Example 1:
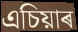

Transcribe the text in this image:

এচিয়াৰ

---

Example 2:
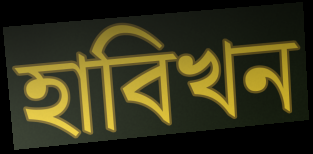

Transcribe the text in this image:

হাবিখন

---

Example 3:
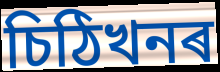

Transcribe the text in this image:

চিঠিখনৰ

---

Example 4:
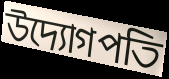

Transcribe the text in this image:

উদ্যোগপতি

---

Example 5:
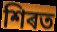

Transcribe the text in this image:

শিৰত